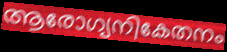
ആരോഗ്യനികേതനം